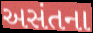
અસંતના